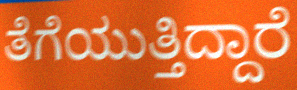
ತೆಗೆಯುತ್ತಿದ್ದಾರೆ